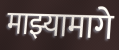
माझ्यामागे